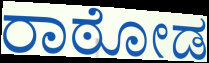
ರಾಠೋಡ